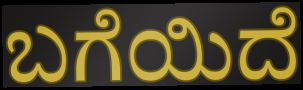
ಬಗೆಯಿದೆ